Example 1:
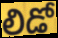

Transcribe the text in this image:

లిడో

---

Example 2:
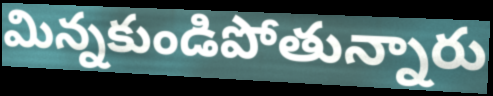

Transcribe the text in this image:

మిన్నకుండిపోతున్నారు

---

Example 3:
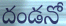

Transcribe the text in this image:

దండనో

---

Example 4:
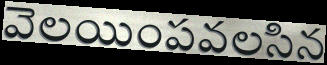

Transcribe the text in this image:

వెలయింపవలసిన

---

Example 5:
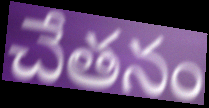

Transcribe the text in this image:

చేతనం